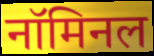
नॉमिनल